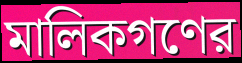
মালিকগণের